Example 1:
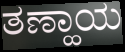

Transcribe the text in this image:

ತಣ್ಹಾಯ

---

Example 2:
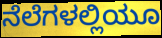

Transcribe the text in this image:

ನೆಲೆಗಳಲ್ಲಿಯೂ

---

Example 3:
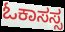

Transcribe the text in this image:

ಓಕಾಸಸ್ಸ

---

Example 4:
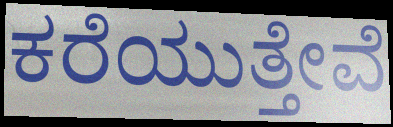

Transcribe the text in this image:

ಕರೆಯುತ್ತೇವೆ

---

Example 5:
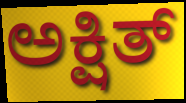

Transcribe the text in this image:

ಅಕ್ಷಿತ್